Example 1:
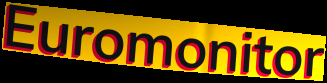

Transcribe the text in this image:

Euromonitor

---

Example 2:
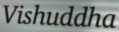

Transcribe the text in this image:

Vishuddha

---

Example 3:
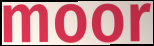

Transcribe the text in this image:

moor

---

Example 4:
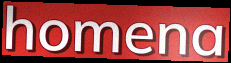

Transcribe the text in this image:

homena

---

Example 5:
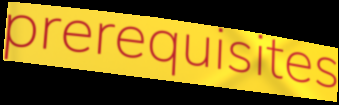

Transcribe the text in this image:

prerequisites